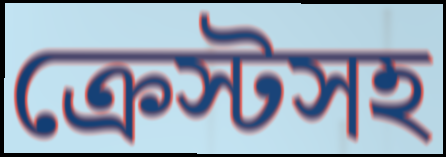
ক্রেস্টসহ